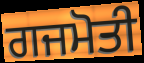
ਗਜਮੋਤੀ